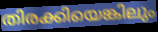
തിരക്കിയെങ്കിലും